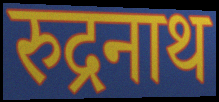
रुद्रनाथ